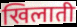
खिलाती